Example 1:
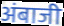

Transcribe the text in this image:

अंबाजी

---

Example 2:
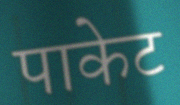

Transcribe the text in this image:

पाकेट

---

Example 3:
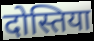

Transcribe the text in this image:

दोस्तिया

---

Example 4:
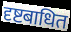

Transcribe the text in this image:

दृष्टबाधित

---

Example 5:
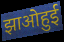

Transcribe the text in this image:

झाओहुई